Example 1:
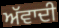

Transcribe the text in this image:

ਅੱਵਾਦੀ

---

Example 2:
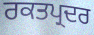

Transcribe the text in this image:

ਰਕਤਪ੍ਰਦਰ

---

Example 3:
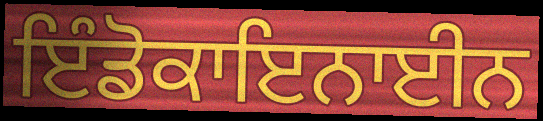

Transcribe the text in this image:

ਇੰਡੋਕਾਇਨਾਈਨ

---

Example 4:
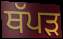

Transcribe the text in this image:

ਥੱਪੜ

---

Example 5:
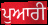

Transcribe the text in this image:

ਪੁਆਰੀ